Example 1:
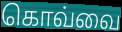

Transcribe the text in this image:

கொவ்வை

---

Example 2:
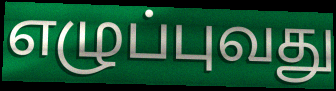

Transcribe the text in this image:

எழுப்புவது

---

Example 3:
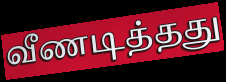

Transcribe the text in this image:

வீணடித்தது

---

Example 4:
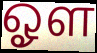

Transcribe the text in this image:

ஓள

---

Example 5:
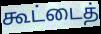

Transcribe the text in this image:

கூட்டைத்